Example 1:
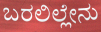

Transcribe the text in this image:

ಬರಲಿಲ್ಲೇನು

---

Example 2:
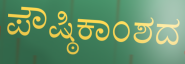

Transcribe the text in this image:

ಪೌಷ್ಠಿಕಾಂಶದ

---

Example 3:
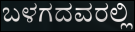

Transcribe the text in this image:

ಬಳಗದವರಲ್ಲಿ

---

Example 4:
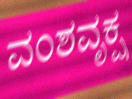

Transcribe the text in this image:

ವಂಶವೃಕ್ಷ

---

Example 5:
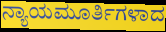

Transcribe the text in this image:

ನ್ಯಾಯಮೂರ್ತಿಗಳಾದ